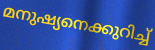
മനുഷ്യനെക്കുറിച്ച്